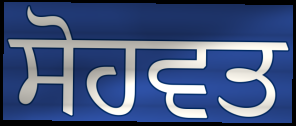
ਸੋਹਵਤ